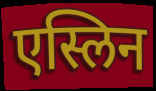
एस्लिन